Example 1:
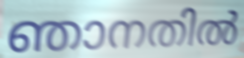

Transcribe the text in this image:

ഞാനതിൽ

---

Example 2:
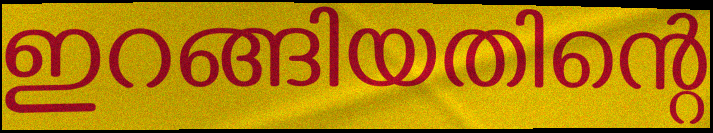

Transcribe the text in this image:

ഇറങ്ങിയതിന്റെ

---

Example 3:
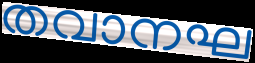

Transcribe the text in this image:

തവാനഘ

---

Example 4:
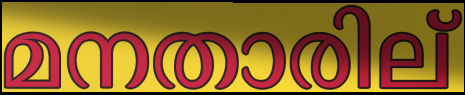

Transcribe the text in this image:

മനതാരില്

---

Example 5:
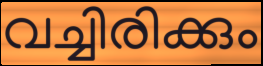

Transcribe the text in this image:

വച്ചിരിക്കും